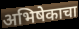
अभिषेकाचा